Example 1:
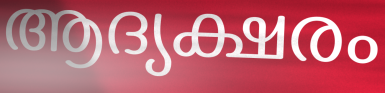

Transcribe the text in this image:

ആദ്യക്ഷരം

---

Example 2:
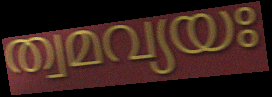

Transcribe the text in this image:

ത്വമവ്യയഃ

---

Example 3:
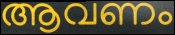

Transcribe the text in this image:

ആവണം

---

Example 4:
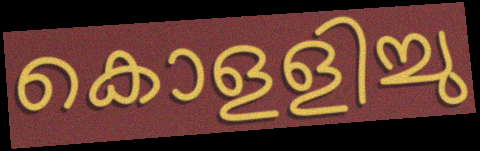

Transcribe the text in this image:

കൊളളിച്ചു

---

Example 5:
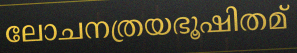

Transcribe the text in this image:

ലോചനത്രയഭൂഷിതമ്